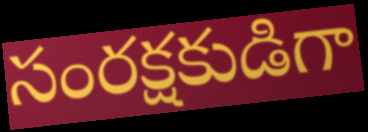
సంరక్షకుడిగా